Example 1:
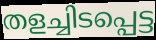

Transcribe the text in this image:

തളച്ചിടപ്പെട്ട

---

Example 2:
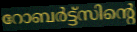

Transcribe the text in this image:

റോബർട്ട്സിന്റെ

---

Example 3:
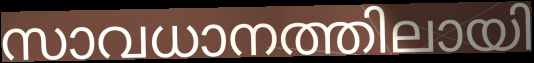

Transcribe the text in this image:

സാവധാനത്തിലായി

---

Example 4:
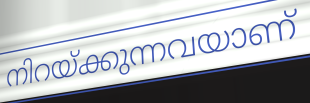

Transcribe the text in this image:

നിറയ്ക്കുന്നവയാണ്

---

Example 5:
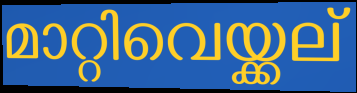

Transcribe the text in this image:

മാറ്റിവെയ്ക്കല്